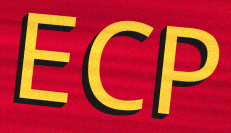
ECP